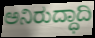
ಅನಿರುದ್ಧಾದಿ